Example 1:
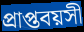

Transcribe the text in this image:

প্রাপ্তবয়সী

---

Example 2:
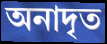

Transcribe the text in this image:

অনাদৃত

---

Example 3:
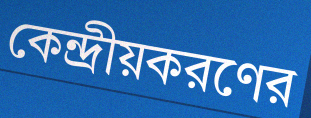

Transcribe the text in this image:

কেন্দ্রীয়করণের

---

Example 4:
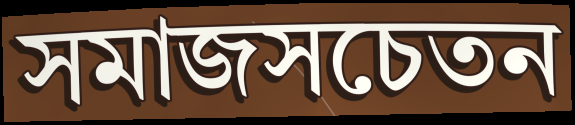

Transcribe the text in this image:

সমাজসচেতন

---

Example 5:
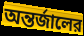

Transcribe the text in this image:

অন্তর্জালের